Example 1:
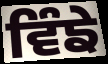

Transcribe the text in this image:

ਵਿੰਙੇ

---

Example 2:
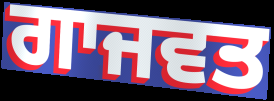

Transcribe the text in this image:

ਗਾਜਵਤ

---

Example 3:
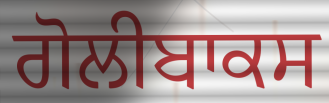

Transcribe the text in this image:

ਗੋਲੀਬਾਕਸ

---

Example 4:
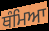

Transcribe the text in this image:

ਥੰਮਿਆ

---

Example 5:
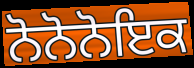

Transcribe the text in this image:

ਨੋਨੋਨੋਇਕ